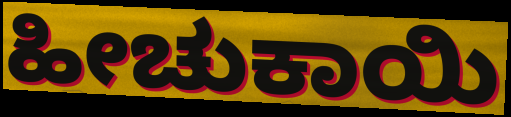
ಹೀಚುಕಾಯಿ